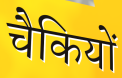
चैकियों